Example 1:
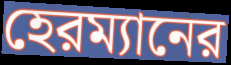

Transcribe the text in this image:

হেরম্যানের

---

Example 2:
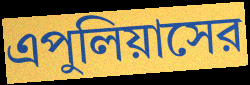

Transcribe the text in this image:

এপুলিয়াসের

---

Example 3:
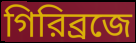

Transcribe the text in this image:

গিরিব্রজে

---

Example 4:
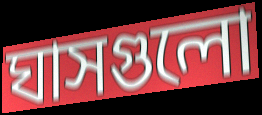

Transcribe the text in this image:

ঘাসগুলো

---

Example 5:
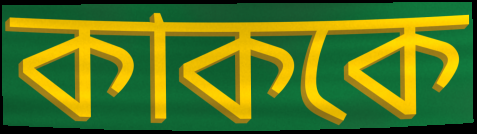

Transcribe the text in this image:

কাককে